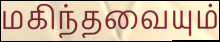
மகிந்தவையும்